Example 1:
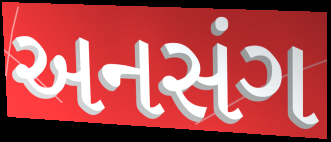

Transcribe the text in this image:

અનસંગ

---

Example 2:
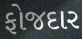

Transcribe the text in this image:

ફોજદાર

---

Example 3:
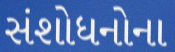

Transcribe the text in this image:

સંશોધનોના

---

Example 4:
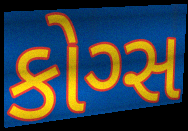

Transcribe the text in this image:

કોગ્સ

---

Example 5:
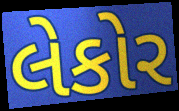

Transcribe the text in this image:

લેકોર